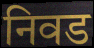
निवड